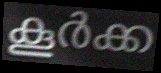
കൂർക്ക